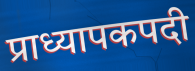
प्राध्यापकपदी